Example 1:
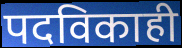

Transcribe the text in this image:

पदविकाही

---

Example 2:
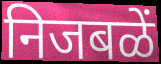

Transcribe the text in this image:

निजबळें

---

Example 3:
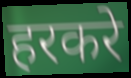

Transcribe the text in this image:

हरकरे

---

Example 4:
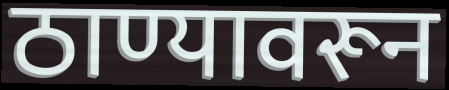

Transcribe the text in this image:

ठाण्यावरून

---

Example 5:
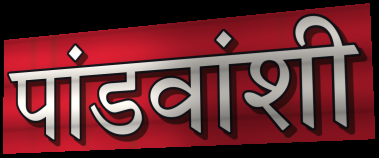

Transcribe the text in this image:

पांडवांशी